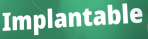
Implantable